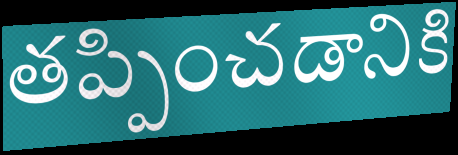
తప్పించడానికి